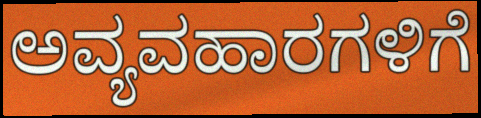
ಅವ್ಯವಹಾರಗಳಿಗೆ